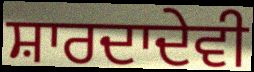
ਸ਼ਾਰਦਾਦੇਵੀ